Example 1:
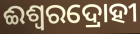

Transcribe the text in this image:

ଈଶ୍ଵରଦ୍ରୋହୀ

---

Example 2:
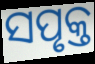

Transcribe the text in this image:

ସପୃକ୍ତ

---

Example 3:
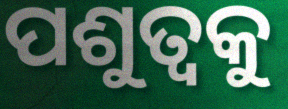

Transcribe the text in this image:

ପଶୁତ୍ୱକୁ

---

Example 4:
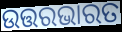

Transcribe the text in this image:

ଉତ୍ତରଭାରତ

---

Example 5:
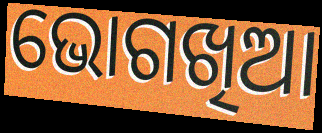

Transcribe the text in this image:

ଭୋଗଖିଆ